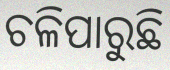
ଚଳିପାରୁଛି